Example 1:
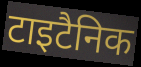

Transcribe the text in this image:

टाइटैनिक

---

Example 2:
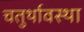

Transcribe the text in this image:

चतुर्थावस्था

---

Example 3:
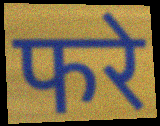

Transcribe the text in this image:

फरे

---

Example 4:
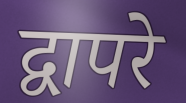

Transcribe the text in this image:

द्वापरे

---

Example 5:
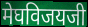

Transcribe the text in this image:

मेघविजयजी